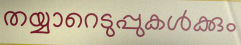
തയ്യാറെടുപ്പുകൾക്കും